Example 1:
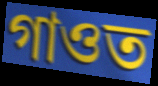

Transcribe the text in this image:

গাওত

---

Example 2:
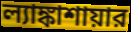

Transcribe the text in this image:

ল্যাঙ্কাশায়ার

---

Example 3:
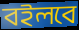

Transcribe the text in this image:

বইলবে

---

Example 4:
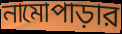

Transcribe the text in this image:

নামোপাড়ার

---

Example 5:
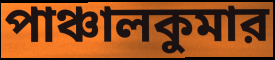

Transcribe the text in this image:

পাঞ্চালকুমার